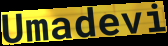
Umadevi